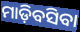
ମାଡ଼ିବସିବା